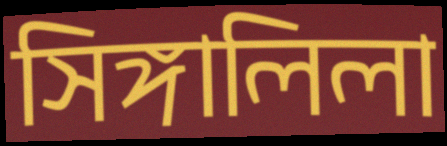
সিঙ্গালিলা